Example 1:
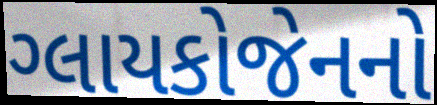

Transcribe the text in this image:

ગ્લાયકોજેનનો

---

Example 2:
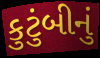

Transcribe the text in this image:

કુટુંબીનું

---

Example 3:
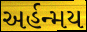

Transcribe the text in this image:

અર્હન્મય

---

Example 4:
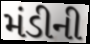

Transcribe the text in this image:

મંડીની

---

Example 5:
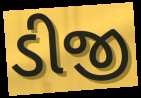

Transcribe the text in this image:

ડીજી